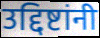
उद्दिष्टांनी